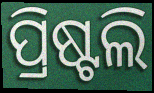
ପ୍ରିଷ୍ଟଲି